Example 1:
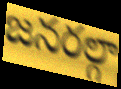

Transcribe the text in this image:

జనరల్గా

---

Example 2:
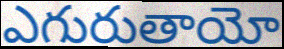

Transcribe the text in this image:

ఎగురుతాయో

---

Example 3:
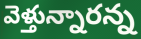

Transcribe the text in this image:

వెళ్తున్నారన్న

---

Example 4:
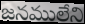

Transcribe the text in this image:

జనములేని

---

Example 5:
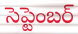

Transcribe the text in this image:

సెప్టెంబర్